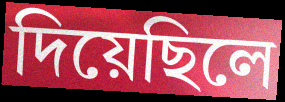
দিয়েছিলে